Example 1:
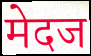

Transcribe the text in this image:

मेदज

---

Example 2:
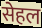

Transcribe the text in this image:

सेहल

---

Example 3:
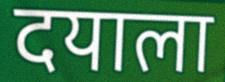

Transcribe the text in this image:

दयाला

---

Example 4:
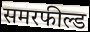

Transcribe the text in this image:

समरफील्ड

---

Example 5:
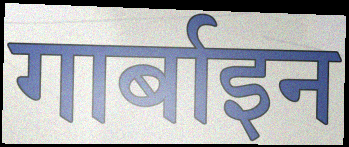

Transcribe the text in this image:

गार्बाइन